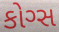
કોગ્સ